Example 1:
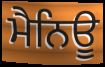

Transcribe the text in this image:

ਮੈਨਿਊ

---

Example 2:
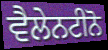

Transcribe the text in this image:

ਵੈਲੇਨਟੀਨੋ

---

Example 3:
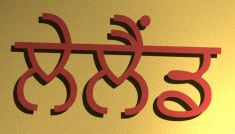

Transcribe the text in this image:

ਲੇਲੈਂਡ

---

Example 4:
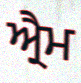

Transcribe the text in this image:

ਐ੍ਰਮ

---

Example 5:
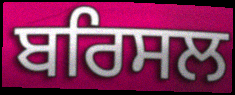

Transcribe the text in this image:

ਬਰਿਸਲ